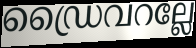
ഡ്രൈവറല്ലേ